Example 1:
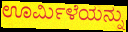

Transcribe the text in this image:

ಊರ್ಮಿಳೆಯನ್ನು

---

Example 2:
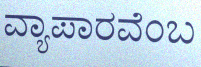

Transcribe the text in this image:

ವ್ಯಾಪಾರವೆಂಬ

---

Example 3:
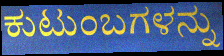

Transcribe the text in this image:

ಕುಟುಂಬಗಳನ್ನು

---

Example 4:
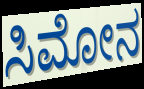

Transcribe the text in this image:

ಸಿಮೋನ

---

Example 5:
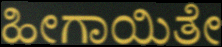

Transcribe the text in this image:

ಹೀಗಾಯಿತೇ